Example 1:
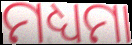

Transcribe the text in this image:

ମଧ୍ୟମା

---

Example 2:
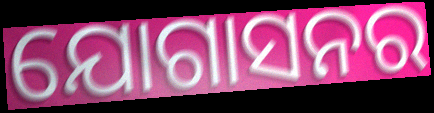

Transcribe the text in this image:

ଯୋଗାସନର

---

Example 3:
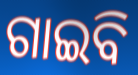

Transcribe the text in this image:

ଗାଇବି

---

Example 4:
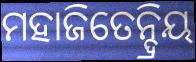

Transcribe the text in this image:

ମହାଜିତେନ୍ଦ୍ରିୟ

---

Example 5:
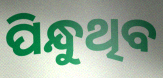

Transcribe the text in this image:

ପିନ୍ଧୁଥିବ